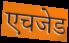
एचजेड